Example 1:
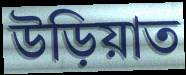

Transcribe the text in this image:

উড়িয়াত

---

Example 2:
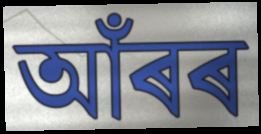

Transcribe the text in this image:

আঁৰৰ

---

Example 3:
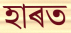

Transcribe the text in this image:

হাৰত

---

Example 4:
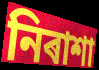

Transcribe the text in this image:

নিৰাশা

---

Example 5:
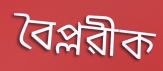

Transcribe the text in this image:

বৈপ্লৱীক